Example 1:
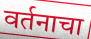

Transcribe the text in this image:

वर्तनाचा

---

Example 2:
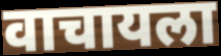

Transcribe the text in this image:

वाचायला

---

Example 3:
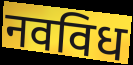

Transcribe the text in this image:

नवविध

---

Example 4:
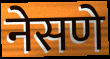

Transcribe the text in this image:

नेसणे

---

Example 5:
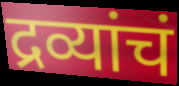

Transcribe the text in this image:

द्रव्यांचं